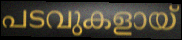
പടവുകളായ്